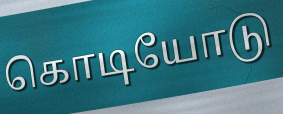
கொடியோடு